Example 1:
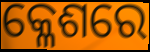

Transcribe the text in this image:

କ୍ଳେଶରେ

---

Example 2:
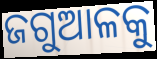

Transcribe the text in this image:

ଜଗୁଆଳକୁ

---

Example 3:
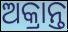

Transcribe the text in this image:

ଅକ୍ରାନ୍ତ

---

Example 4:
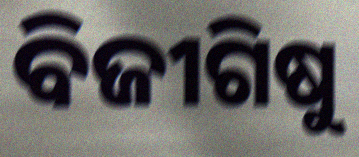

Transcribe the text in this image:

ବିଜୀଗିଷୁ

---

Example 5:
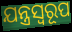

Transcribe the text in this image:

ଯନ୍ତ୍ରସ୍ୱରୂପ